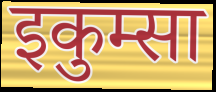
इकुम्सा